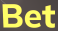
Bet